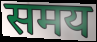
समय